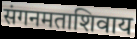
संगनमताशिवाय